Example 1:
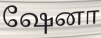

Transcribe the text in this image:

ஷேனா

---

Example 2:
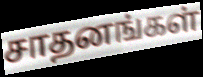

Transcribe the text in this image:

சாதனங்கள்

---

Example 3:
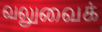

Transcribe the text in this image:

வலுவைக்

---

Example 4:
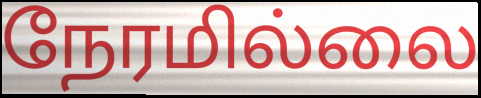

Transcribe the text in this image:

நேரமில்லை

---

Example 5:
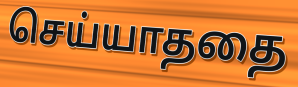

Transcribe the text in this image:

செய்யாததை